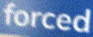
forced